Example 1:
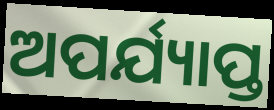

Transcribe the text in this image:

ଅପର୍ଯ୍ୟାପ୍ତ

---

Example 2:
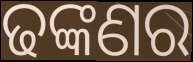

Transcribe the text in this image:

ଢଙ୍କଣର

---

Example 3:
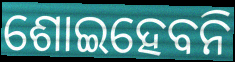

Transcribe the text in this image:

ଶୋଇହେବନି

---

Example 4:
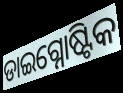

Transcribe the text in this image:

ଡାଇଗ୍ନୋଷ୍ଟିକ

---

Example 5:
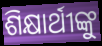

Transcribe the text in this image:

ଶିକ୍ଷାର୍ଥୀଙ୍କୁ